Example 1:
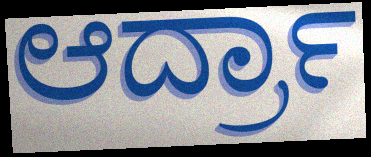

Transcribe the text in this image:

ಆರ್ದ್ರಾ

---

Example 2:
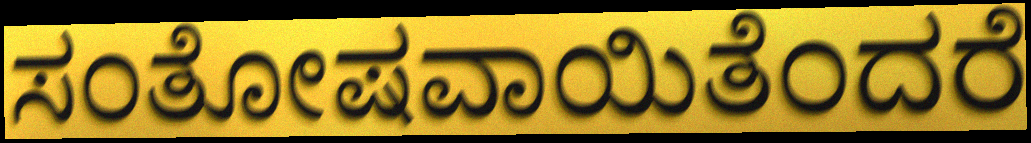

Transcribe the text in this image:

ಸಂತೋಷವಾಯಿತೆಂದರೆ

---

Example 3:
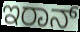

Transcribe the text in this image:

ಇರಾನ್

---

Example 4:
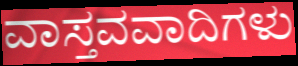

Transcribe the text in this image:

ವಾಸ್ತವವಾದಿಗಳು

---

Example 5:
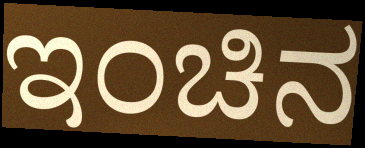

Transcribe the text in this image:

ಇಂಚಿನ